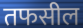
तफसील